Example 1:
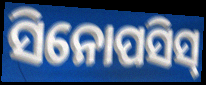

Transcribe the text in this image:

ସିନୋପସିସ୍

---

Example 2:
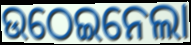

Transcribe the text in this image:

ଉଠେଇନେଲା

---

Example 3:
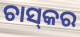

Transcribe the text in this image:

ଚାସ୍‌କର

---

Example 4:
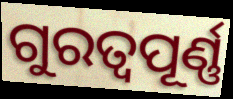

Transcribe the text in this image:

ଗୁରତ୍ୱପୂର୍ଣ୍ଣ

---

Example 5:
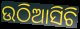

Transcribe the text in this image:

ଉଠିଆସିଚି